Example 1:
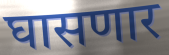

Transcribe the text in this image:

घासणार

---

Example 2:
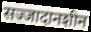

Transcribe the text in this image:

सज्जादानशीन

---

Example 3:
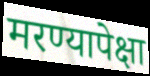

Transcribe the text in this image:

मरण्यापेक्षा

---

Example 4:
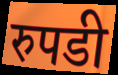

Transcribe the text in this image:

रुपडी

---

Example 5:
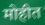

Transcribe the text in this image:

मोहीत